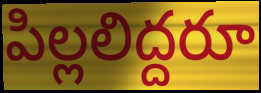
పిల్లలిద్దరూ